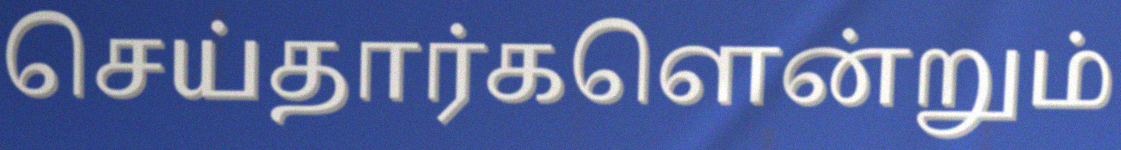
செய்தார்களென்றும்